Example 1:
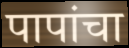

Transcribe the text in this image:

पापांचा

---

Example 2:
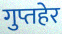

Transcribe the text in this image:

गुप्तहेर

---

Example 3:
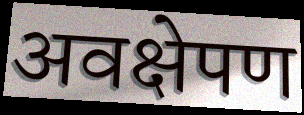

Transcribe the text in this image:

अवक्षेपण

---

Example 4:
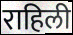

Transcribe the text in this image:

राहिली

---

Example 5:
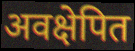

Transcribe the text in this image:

अवक्षेपित